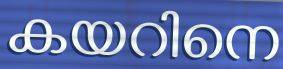
കയറിനെ